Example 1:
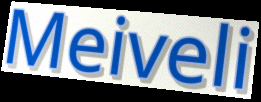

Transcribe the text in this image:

Meiveli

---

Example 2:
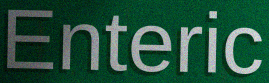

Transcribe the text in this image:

Enteric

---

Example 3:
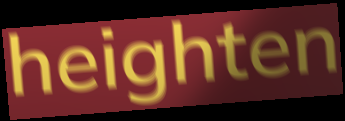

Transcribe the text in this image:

heighten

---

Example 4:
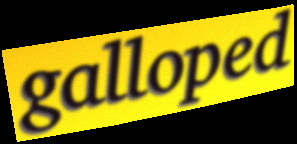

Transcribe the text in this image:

galloped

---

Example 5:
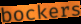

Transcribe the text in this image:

bockers